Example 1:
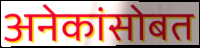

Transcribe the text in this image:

अनेकांसोबत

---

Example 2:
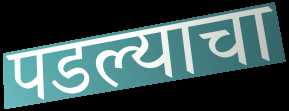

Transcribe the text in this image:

पडल्याचा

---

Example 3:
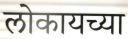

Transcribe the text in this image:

लोकायच्या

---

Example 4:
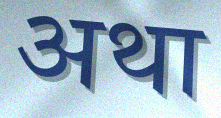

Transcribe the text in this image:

अथा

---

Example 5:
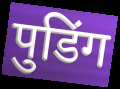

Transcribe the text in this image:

पुडिंग